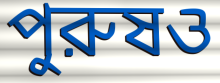
পুরুষও